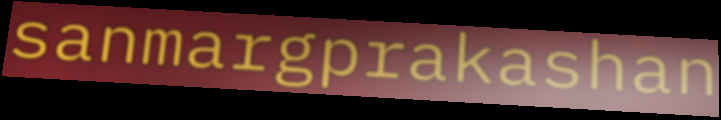
sanmargprakashan